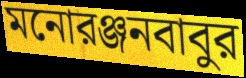
মনোরঞ্জনবাবুর